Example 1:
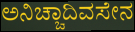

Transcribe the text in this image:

ಅನಿಚ್ಚಾದಿವಸೇನ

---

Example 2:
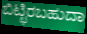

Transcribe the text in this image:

ಬಿಟ್ಟಿರಬಹುದಾ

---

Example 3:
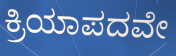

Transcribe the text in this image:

ಕ್ರಿಯಾಪದವೇ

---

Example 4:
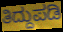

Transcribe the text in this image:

ತಿದ್ದುಪಡಿ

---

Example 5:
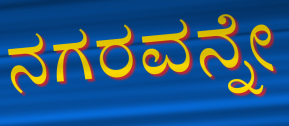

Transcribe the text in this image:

ನಗರವನ್ನೇ